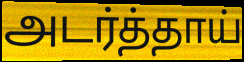
அடர்த்தாய்